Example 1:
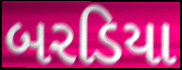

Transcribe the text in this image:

બરડિયા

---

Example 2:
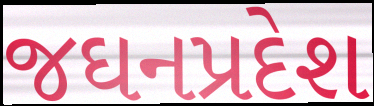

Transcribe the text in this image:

જઘનપ્રદેશ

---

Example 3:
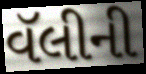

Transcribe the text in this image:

વૅલીની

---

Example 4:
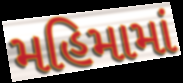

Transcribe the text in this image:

મહિમામાં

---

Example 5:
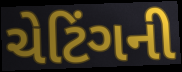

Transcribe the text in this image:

ચેટિંગની